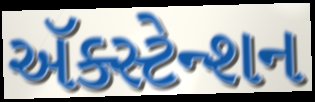
ઍક્સ્ટેન્શન